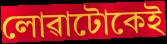
লোৱাটোকেই